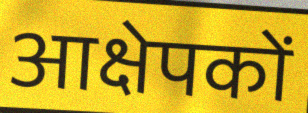
आक्षेपकों